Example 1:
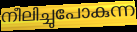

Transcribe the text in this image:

നീലിച്ചുപോകുന്ന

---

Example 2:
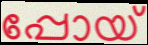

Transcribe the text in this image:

പ്പോയ്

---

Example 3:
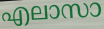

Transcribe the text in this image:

എലാസാ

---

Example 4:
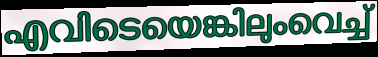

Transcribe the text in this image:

എവിടെയെങ്കിലുംവെച്ച്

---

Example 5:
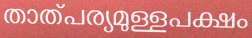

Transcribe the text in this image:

താത്പര്യമുള്ളപക്ഷം